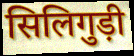
सिलिगुड़ी